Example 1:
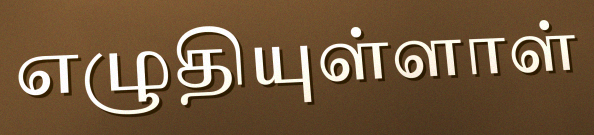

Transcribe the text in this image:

எழுதியுள்ளாள்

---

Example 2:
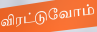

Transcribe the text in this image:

விரட்டுவோம்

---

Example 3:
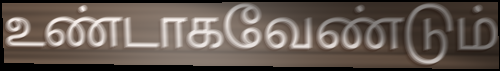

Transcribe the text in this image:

உண்டாகவேண்டும்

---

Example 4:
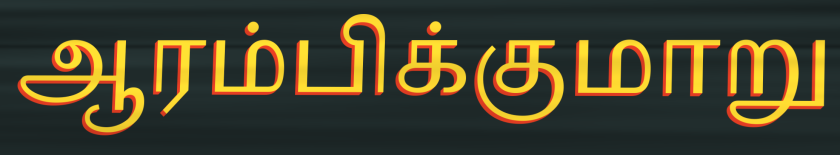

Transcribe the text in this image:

ஆரம்பிக்குமாறு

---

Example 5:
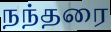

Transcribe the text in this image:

நந்தரை